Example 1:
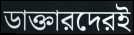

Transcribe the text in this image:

ডাক্তারদেরই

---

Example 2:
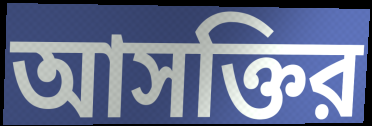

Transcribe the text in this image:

আসক্তির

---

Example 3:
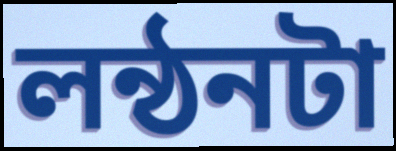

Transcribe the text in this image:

লন্ঠনটা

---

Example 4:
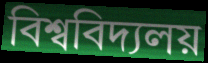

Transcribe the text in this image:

বিশ্ববিদ্যলয়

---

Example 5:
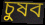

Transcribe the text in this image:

চুষব